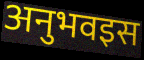
अनुभवइस